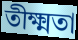
তীক্ষ্মতা